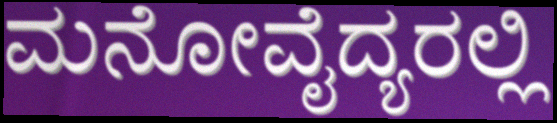
ಮನೋವೈದ್ಯರಲ್ಲಿ